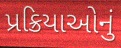
પ્રક્રિયાઓનું